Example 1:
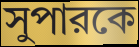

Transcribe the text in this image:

সুপারকে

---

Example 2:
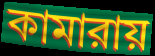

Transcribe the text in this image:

কামারায়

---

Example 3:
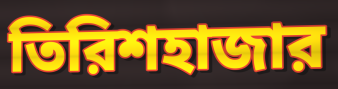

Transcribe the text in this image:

তিরিশহাজার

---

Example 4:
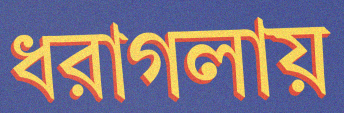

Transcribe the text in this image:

ধরাগলায়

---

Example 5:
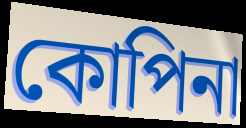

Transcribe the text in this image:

কোপিনা